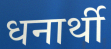
धनार्थी